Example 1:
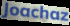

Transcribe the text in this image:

Joachaz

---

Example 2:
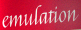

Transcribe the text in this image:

emulation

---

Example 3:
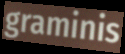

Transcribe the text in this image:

graminis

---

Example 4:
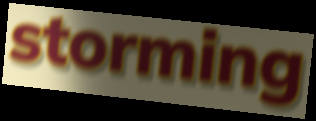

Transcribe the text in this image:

storming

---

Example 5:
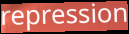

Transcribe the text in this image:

repression